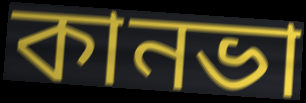
কানভা